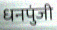
धनपुंजी